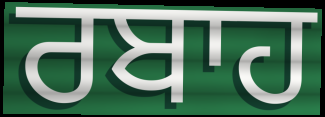
ਰਬਾਹ